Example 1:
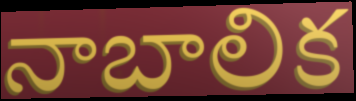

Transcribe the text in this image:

నాబాలిక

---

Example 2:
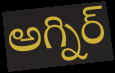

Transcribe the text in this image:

అగ్నిర్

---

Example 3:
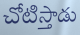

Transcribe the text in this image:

చోటిస్తాడు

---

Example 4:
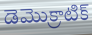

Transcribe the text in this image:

డెమొక్రాటిక్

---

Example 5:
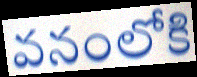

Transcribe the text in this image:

వనంలోకి